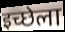
इच्छेला